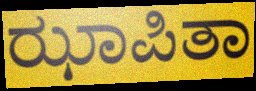
ಝಾಪಿತಾ